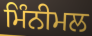
ਮਿੰਨੀਮਲ